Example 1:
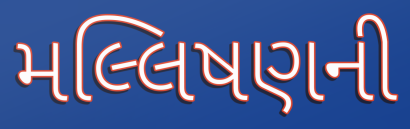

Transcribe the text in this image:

મલ્લિષણની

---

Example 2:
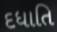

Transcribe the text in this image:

દધાતિ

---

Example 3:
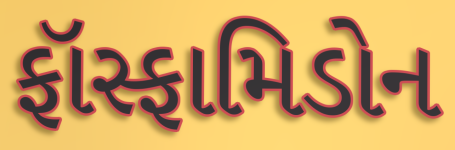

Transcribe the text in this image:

ફૉસ્ફામિડોન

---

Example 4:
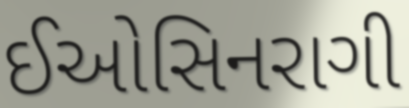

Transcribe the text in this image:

ઈઓસિનરાગી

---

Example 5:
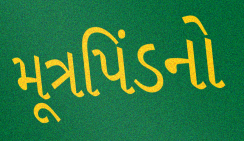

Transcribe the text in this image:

મૂત્રપિંડનો